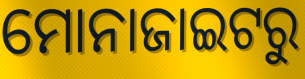
ମୋନାଜାଇଟରୁ